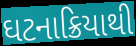
ઘટનાક્રિયાથી